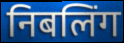
निबलिंग